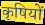
कृषियों